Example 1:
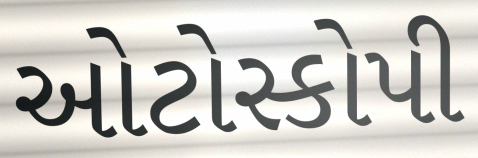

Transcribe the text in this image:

ઓટોસ્કોપી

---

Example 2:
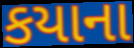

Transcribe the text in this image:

કયાના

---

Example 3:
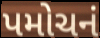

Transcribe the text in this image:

પમોચનં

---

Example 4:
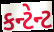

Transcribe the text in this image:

કન્ટેન્ટ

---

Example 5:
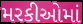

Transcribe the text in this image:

મરકીઓમાં